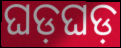
ଘଡ଼ଘଡ଼